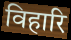
विहारि